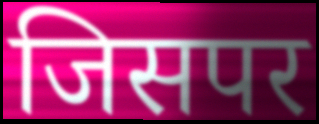
जिसपर